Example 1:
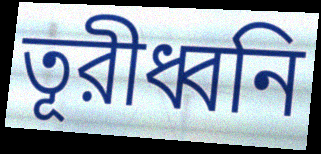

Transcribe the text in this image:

তূরীধ্বনি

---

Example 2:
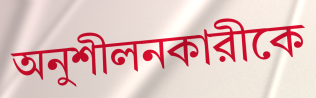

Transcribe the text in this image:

অনুশীলনকারীকে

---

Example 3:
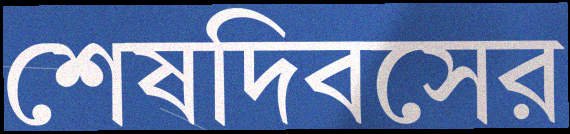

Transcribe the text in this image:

শেষদিবসের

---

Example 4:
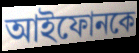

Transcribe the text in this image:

আইফোনকে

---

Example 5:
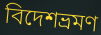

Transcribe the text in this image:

বিদেশভ্রমণ